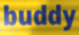
buddy